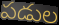
పడుల